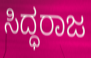
ಸಿದ್ಧರಾಜ